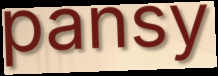
pansy